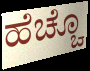
ಹೆಚ್ಚೊ